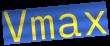
Vmax